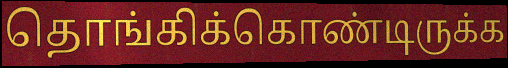
தொங்கிக்கொண்டிருக்க